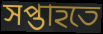
সপ্তাহতে